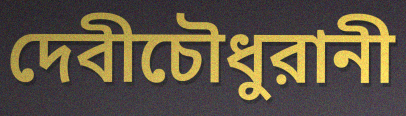
দেবীচৌধুরানী